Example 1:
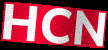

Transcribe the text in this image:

HCN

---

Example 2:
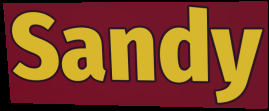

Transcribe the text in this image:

Sandy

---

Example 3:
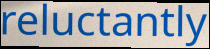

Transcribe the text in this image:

reluctantly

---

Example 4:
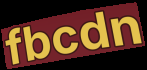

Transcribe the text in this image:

fbcdn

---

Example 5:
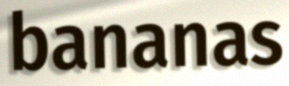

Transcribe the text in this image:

bananas